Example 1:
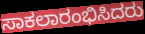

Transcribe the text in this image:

ಸಾಕಲಾರಂಭಿಸಿದರು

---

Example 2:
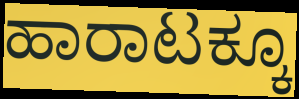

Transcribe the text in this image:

ಹಾರಾಟಕ್ಕೂ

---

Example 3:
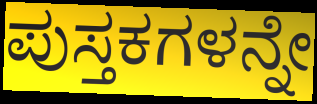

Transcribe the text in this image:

ಪುಸ್ತಕಗಳನ್ನೇ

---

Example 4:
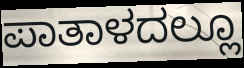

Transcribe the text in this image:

ಪಾತಾಳದಲ್ಲೂ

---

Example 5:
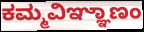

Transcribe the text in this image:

ಕಮ್ಮವಿಞ್ಞಾಣಂ